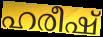
ഹരീഷ്